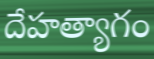
దేహత్యాగం